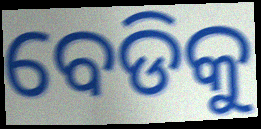
ବେଡିକୁ